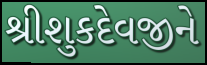
શ્રીશુકદેવજીને